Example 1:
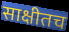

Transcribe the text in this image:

साक्षीतच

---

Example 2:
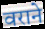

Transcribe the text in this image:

वराने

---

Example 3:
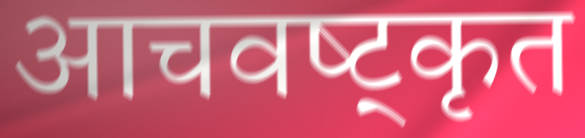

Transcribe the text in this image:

आचवष्ट्कृत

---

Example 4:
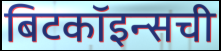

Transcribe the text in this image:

बिटकॉइन्सची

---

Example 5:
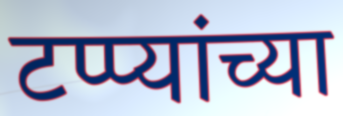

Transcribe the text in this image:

टप्प्यांच्या